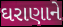
ઘરાણાને